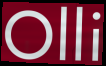
Olli